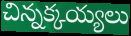
చిన్నక్కయ్యలు